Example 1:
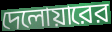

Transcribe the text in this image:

দেলোয়ারের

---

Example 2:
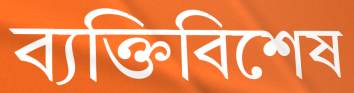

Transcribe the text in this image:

ব্যক্তিবিশেষ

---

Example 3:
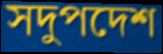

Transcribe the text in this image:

সদুপদেশ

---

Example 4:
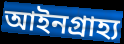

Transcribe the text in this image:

আইনগ্রাহ্য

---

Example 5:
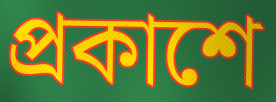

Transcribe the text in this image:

প্রকাশে